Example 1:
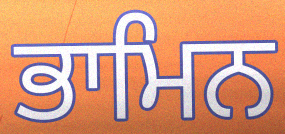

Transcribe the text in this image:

ਭਾਮਿਨ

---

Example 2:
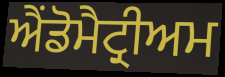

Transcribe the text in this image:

ਐਂਡੋਮੈਟ੍ਰੀਅਮ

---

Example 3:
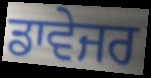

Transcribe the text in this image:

ਡਾਵੇਜਰ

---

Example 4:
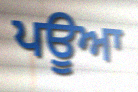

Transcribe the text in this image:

ਪਊਆ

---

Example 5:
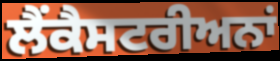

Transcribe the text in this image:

ਲੈਂਕੈਸਟਰੀਅਨਾਂ